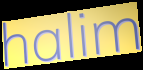
halim